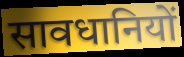
सावधानियों